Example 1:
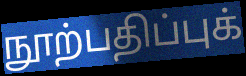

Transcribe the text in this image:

நூற்பதிப்புக்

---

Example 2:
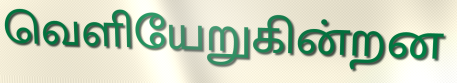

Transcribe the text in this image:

வெளியேறுகின்றன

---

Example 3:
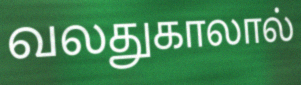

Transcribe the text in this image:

வலதுகாலால்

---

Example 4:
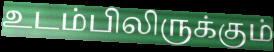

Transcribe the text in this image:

உடம்பிலிருக்கும்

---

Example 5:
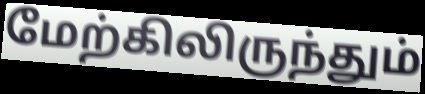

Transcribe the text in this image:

மேற்கிலிருந்தும்